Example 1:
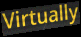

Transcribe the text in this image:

Virtually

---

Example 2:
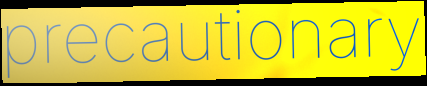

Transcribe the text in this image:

precautionary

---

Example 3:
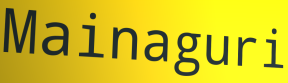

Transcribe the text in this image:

Mainaguri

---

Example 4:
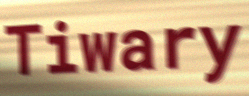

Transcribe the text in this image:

Tiwary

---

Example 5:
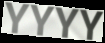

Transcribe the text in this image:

YYYY